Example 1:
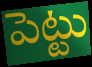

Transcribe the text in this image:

పెట్టు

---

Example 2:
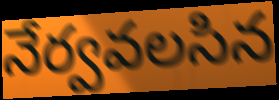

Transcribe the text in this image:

నేర్వవలసిన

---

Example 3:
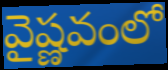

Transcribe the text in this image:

వైష్ణవంలో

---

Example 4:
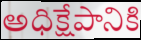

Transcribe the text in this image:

అధిక్షేపానికి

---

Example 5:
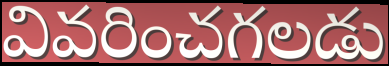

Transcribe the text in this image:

వివరించగలడు